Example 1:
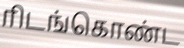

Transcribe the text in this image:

ரிடங்கொண்ட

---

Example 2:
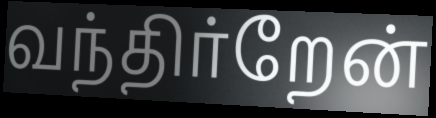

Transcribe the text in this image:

வந்திர்றேன்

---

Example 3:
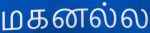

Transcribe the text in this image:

மகனல்ல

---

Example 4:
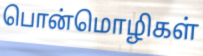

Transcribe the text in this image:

பொன்மொழிகள்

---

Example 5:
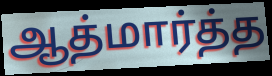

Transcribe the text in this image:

ஆத்மார்த்த